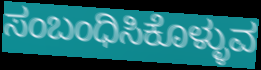
ಸಂಬಂಧಿಸಿಕೊಳ್ಳುವ